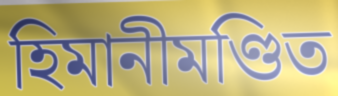
হিমানীমণ্ডিত